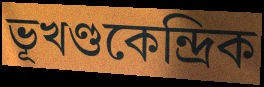
ভূখণ্ডকেন্দ্রিক